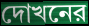
দোখনের